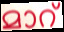
മാറ്